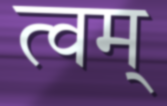
त्वम्